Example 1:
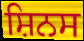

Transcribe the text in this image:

ਸ਼ਿਨਸ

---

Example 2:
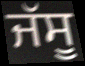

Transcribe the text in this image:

ਜੱਸੂ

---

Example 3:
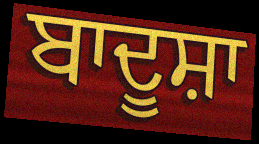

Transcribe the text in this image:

ਬਾਦੂਸ਼ਾ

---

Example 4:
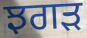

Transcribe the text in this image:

ਝਗੜ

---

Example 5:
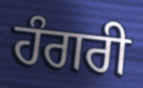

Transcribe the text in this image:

ਹੰਗਰੀ